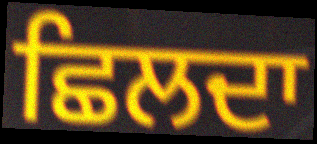
ਛਿਲਦਾ